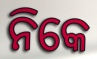
ନିକେ